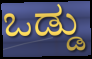
ಒಡ್ಡು